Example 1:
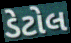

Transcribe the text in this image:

ડેટોલ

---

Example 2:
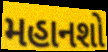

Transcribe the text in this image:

મહાનશો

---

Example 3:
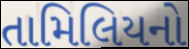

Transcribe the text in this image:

તામિલિયનો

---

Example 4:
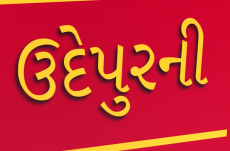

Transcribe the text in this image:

ઉદેપુરની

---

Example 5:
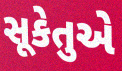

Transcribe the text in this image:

સૂકેતુએ